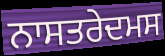
ਨਾਸਤਰੇਦਮਸ